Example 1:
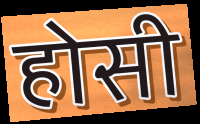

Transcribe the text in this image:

होसी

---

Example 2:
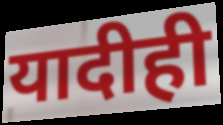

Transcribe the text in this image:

यादीही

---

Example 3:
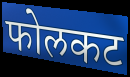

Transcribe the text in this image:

फोलकट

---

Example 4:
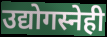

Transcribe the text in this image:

उद्योगस्नेही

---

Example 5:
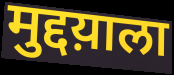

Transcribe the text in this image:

मुद्दय़ाला